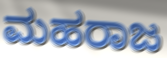
ಮಹರಾಜ